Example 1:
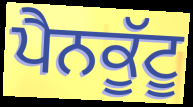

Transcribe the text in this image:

ਪੈਨਕੂੱਟੂ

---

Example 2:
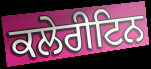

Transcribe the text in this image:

ਕਲੇਰੀਟਿਨ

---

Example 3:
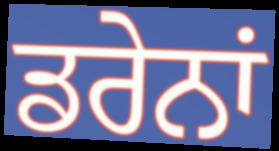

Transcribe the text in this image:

ਡਰੇਨਾਂ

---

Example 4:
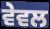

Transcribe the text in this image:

ਵੇਵਲ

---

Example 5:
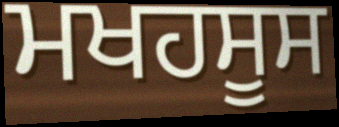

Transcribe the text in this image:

ਮਖਹਸੂਸ